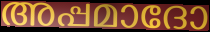
അപ്പമാദോ